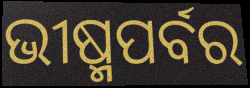
ଭୀଷ୍ମପର୍ବର